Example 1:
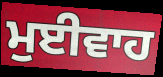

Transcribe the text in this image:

ਮੁਈਵਾਹ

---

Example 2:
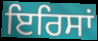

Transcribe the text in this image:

ਇਰਿਸਾਂ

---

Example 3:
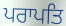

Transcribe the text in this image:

ਪਰਾਪਤਿ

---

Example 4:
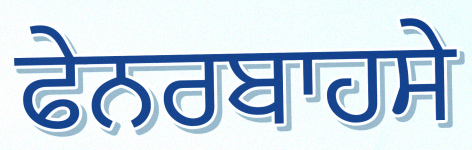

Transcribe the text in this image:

ਫੇਨਰਬਾਹਸੇ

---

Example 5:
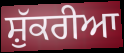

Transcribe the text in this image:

ਸ਼ੁੱਕਰੀਆ